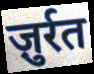
ज़ुर्रत